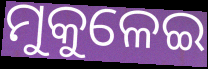
ମୁକୁଳେଇ